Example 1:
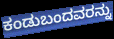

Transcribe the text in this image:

ಕಂಡುಬಂದವರನ್ನು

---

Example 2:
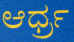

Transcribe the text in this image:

ಆರ್ಧ್ರ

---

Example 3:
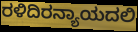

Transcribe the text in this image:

ರಳಿದಿರನ್ಯಾಯದಲಿ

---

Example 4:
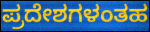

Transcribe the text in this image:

ಪ್ರದೇಶಗಳಂತಹ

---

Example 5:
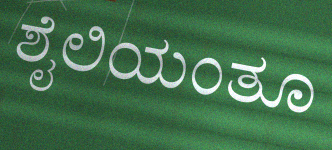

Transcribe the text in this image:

ಶೈಲಿಯಂತೂ